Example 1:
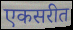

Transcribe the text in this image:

एकसरीत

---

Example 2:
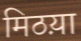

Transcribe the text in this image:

मिठय़ा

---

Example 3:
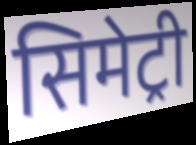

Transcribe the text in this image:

सिमेट्री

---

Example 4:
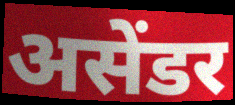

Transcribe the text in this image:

असेंडर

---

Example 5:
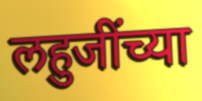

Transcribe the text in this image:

लहुजींच्या